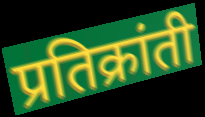
प्रतिक्रांती